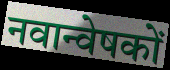
नवान्वेषकों